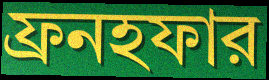
ফ্রনহফার